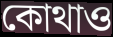
কোথাও